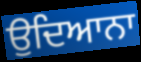
ਉਦਿਆਨਾ